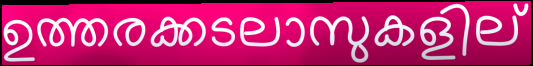
ഉത്തരക്കടലാസുകളില്